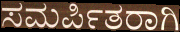
ಸಮರ್ಪಿತರಾಗಿ